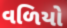
વળિયો